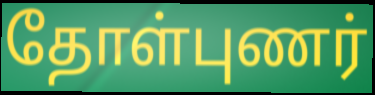
தோள்புணர்